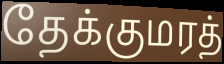
தேக்குமரத்